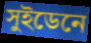
সুইডেনে